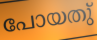
പോയതു്